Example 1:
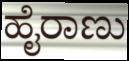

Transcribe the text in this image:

ಹೈರಾಣು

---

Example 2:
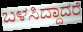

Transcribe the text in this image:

ಬಳಸಿದ್ದಾದರೆ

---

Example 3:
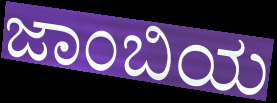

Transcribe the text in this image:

ಜಾಂಬಿಯ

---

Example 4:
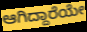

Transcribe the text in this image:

ಆಗಿದ್ದಾರೆಯೇ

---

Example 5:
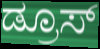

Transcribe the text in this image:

ಡ್ರೂಸ್